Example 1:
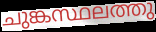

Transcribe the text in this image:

ചുങ്കസ്ഥലത്തു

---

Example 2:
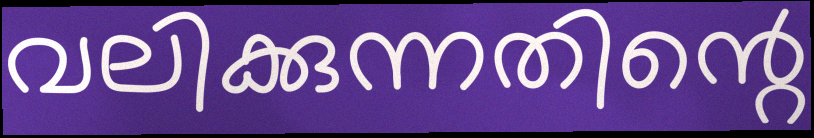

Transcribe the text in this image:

വലിക്കുന്നതിന്റെ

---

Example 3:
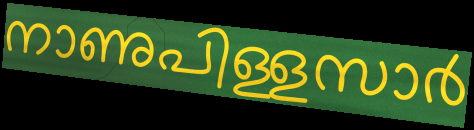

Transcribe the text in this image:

നാണുപിള്ളസാർ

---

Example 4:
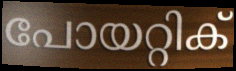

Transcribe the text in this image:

പോയറ്റിക്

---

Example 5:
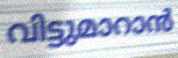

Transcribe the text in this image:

വിട്ടുമാറാൻ